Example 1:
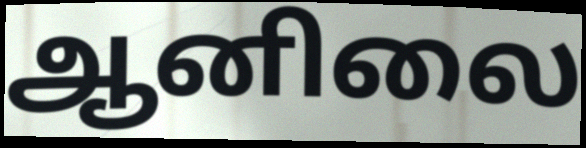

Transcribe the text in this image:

ஆனிலை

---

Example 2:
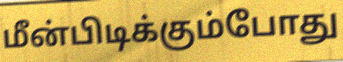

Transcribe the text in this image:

மீன்பிடிக்கும்போது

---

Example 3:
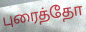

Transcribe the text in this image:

புரைத்தோ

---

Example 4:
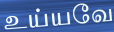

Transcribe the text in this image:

உய்யவே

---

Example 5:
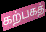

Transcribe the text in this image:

கற்பகத்